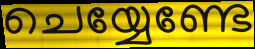
ചെയ്യേണ്ടേ